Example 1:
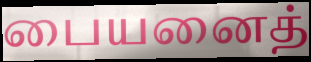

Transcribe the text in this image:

பையனைத்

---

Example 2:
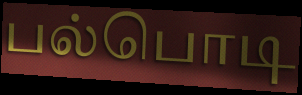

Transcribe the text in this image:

பல்பொடி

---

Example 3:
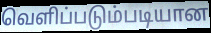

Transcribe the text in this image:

வெளிப்படும்படியான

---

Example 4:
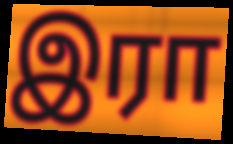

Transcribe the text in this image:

இரா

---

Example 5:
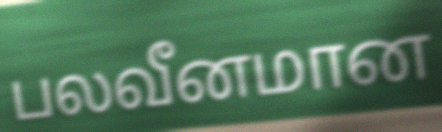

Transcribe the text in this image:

பலவீனமான